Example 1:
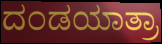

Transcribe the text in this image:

ದಂಡಯಾತ್ರಾ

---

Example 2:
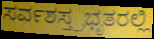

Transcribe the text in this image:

ಸರ್ವಶಸ್ತ್ರಭೃತರಲ್ಲಿ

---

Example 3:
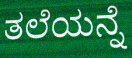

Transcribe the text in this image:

ತಲೆಯನ್ನೆ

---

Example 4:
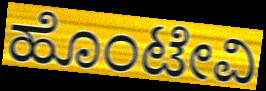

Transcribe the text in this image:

ಹೊಂಟೇವಿ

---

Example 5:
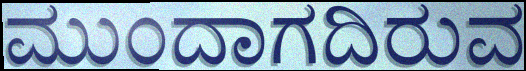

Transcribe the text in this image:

ಮುಂದಾಗದಿರುವ